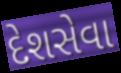
દેશસેવા